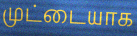
முட்டையாக